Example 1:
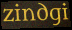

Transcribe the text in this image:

zindgi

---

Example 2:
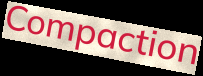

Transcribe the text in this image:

Compaction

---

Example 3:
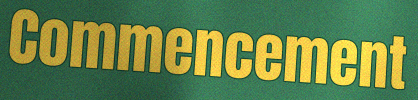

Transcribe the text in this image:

Commencement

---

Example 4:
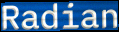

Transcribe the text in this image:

Radian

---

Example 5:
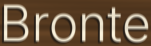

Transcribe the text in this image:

Bronte